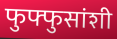
फुफ्फुसांशी